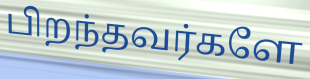
பிறந்தவர்களே